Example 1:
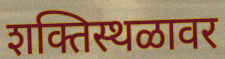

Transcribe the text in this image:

शक्तिस्थळावर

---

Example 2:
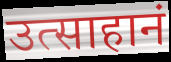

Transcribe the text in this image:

उत्साहानं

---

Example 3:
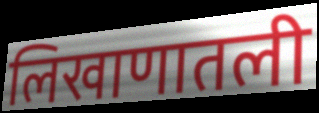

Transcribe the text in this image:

लिखाणातली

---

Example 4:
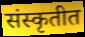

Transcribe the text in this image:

संस्कृतीत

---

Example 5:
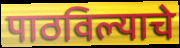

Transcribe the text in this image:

पाठविल्याचे